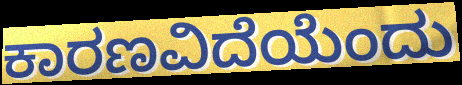
ಕಾರಣವಿದೆಯೆಂದು